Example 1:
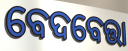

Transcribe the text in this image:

ବେଦବେତ୍ତା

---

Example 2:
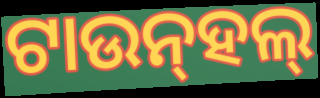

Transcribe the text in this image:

ଟାଉନ୍‌ହଲ୍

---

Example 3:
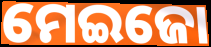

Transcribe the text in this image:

ମେଇଜୋ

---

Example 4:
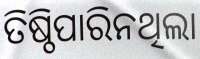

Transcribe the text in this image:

ତିଷ୍ଠିପାରିନଥିଲା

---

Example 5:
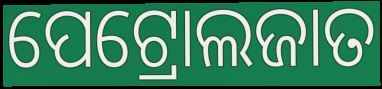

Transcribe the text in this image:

ପେଟ୍ରୋଲଜାତ